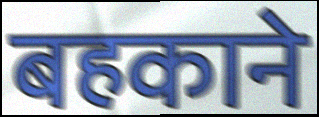
बहकाने